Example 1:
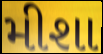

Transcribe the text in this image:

મીશા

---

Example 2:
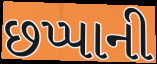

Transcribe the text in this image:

છપ્પાની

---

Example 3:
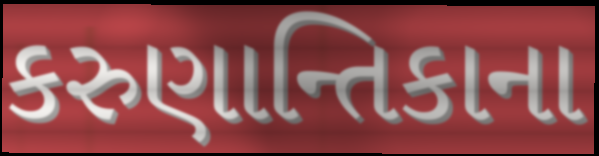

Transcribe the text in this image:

કરુણાન્તિકાના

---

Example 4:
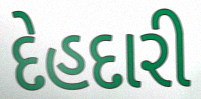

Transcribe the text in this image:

દેહદારી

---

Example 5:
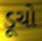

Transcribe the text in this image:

ડૂચો